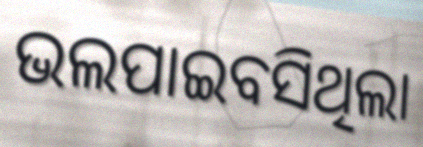
ଭଲପାଇବସିଥିଲା